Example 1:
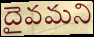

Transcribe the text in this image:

దైవమని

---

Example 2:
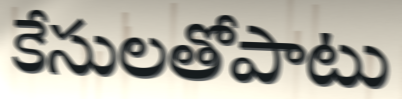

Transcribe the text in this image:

కేసులతోపాటు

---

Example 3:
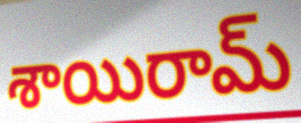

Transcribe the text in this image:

శాయిరామ్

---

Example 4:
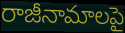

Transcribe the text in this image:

రాజీనామాలపై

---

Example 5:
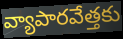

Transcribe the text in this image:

వ్యాపారవేత్తకు